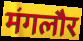
मंगलौर